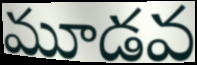
మూడవ